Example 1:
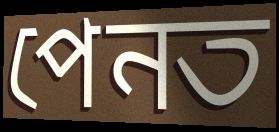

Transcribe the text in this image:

পেনত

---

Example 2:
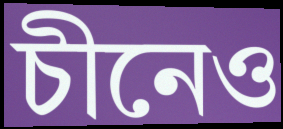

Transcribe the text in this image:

চীনেও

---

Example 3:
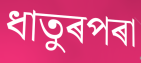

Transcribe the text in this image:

ধাতুৰপৰা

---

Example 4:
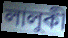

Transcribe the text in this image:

লালুকী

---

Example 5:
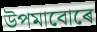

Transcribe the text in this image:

উপমাবোৰে